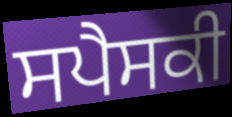
ਸਪੈਸਕੀ